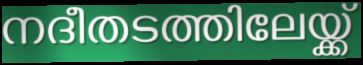
നദീതടത്തിലേയ്ക്ക്